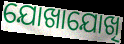
ଯୋଖାଯୋଖି